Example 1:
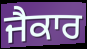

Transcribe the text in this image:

ਜੈਕਾਰ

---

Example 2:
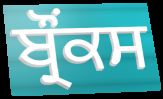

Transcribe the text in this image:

ਬ੍ਰੌਂਕਸ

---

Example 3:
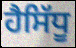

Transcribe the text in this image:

ਹੈਸਿੱਧੂ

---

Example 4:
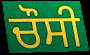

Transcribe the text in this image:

ਚੌਸੀ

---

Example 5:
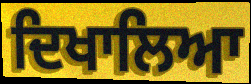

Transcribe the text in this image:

ਦਿਖਾਲਿਆ